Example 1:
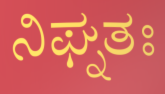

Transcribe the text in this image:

ನಿಘ್ನತಃ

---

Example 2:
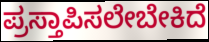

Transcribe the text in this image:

ಪ್ರಸ್ತಾಪಿಸಲೇಬೇಕಿದೆ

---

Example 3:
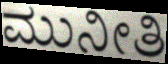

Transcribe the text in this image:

ಮುನೀತಿ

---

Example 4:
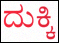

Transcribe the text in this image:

ದುಕ್ಕಿ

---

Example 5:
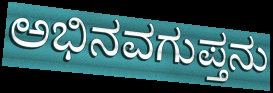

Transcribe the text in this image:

ಅಭಿನವಗುಪ್ತನು